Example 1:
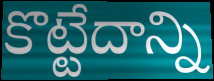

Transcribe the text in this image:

కొట్టేదాన్ని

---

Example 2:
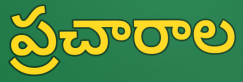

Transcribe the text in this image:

ప్రచారాల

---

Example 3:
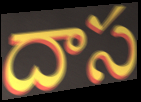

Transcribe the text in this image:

దాస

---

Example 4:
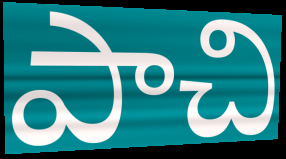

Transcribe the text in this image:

పాచి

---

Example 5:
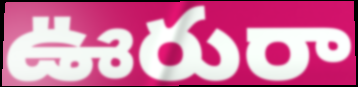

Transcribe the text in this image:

ఊరురా